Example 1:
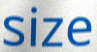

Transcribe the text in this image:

size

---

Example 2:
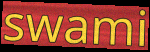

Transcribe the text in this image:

swami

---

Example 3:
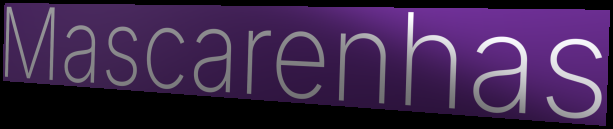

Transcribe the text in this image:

Mascarenhas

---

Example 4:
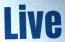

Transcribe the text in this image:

Live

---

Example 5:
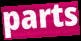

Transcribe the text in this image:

parts